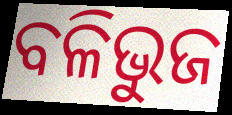
ବଳିଭୁଜ